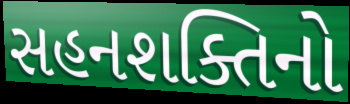
સહનશક્તિનો